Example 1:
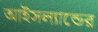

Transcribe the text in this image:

আইসল্যান্ডের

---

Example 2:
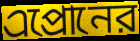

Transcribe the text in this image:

এপ্রোনের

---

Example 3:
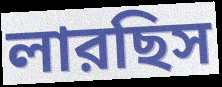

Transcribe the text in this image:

লারছিস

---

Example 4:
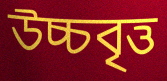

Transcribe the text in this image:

উচ্চবৃত্ত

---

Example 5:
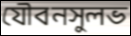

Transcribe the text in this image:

যৌবনসুলভ